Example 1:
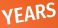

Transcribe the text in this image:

YEARS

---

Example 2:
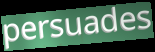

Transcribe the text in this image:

persuades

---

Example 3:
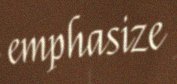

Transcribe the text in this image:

emphasize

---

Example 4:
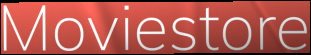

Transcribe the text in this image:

Moviestore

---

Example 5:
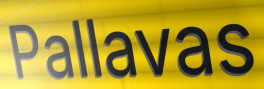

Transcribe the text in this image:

Pallavas